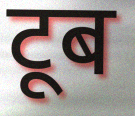
टूब